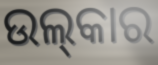
ଉଲ୍‍କାର